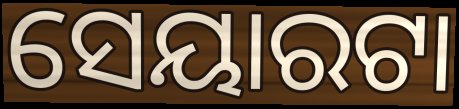
ସେୟାରଟା